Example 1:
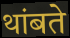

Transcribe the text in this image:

थांबते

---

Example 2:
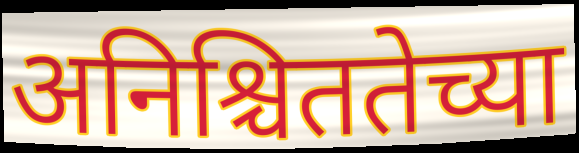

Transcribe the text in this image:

अनिश्चिततेच्या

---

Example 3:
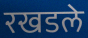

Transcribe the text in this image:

रखडले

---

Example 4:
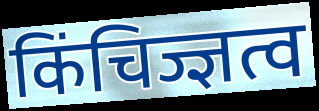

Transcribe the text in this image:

किंचिज्ज्ञत्व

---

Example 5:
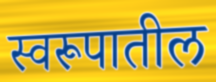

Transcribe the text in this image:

स्वरूपातील